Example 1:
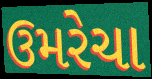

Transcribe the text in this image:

ઉમરેચા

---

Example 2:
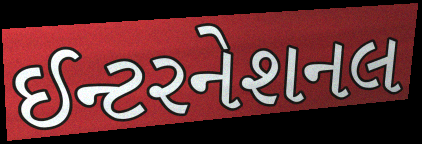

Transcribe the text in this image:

ઈન્ટરનેશનલ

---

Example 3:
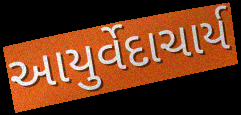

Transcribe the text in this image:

આયુર્વેદાચાર્ય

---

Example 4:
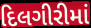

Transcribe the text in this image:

દિલગીરીમાં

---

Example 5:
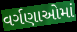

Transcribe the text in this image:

વર્ગણાઓમાં